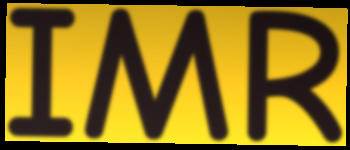
IMR